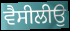
ਵੈਸੀਲੀਉ